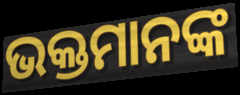
ଭକ୍ତମାନଙ୍କ